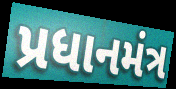
પ્રધાનમંત્ર